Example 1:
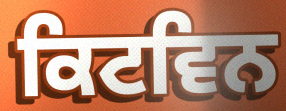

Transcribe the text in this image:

ਕਿਟਵਿਨ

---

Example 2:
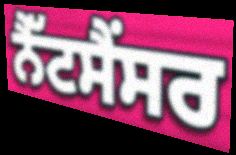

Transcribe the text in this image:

ਨੈੱਟਸੈਂਸਰ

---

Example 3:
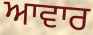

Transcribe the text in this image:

ਆਵਾਰ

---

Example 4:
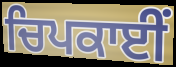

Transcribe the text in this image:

ਚਿਪਕਾਈਂ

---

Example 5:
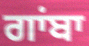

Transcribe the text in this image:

ਗਾਂਬਾ